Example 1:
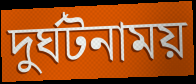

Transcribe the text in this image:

দুর্ঘটনাময়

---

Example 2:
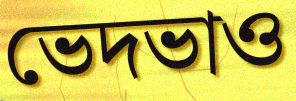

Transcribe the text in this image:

ভেদভাও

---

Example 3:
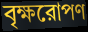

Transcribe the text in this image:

বৃক্ষরোপণ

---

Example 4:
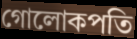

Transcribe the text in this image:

গোলোকপতি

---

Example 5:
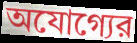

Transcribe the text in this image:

অযোগ্যের